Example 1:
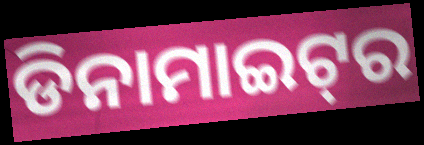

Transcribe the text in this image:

ଡିନାମାଇଟ୍‌ର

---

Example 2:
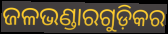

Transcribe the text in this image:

ଜଳଭଣ୍ଡାରଗୁଡ଼ିକର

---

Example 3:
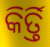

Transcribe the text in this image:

କିର୍ତ୍ତି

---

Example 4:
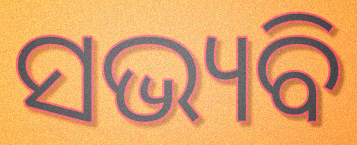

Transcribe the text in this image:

ସଭ୍ୟବି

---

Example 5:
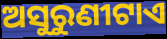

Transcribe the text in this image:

ଅସୁରୁଣୀଟାଏ